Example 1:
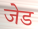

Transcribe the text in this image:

जेड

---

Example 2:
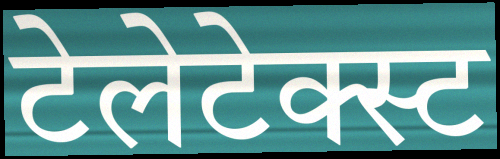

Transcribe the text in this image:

टेलेटेक्स्ट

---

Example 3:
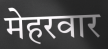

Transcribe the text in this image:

मेहरवार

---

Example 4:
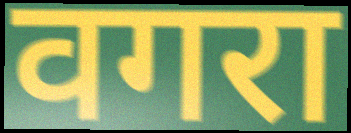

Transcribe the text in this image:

वगरा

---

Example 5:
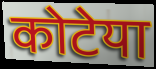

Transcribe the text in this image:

कोटेया